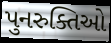
પુનરુક્તિઓ